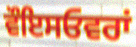
ਵੌਇਸਓਵਰਾਂ